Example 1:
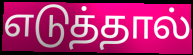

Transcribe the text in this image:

எடுத்தால்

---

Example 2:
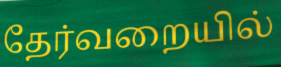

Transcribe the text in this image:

தேர்வறையில்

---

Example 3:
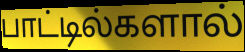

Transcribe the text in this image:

பாட்டில்களால்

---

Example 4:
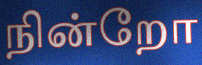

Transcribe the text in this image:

நின்றோ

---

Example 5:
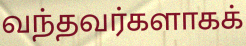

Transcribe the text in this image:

வந்தவர்களாகக்